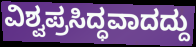
ವಿಶ್ವಪ್ರಸಿದ್ಧವಾದದ್ದು